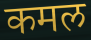
कमल